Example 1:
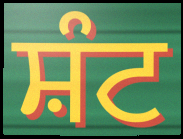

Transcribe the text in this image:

ਸ਼ੰਟ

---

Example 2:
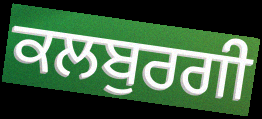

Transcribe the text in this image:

ਕਲਬੁਰਗੀ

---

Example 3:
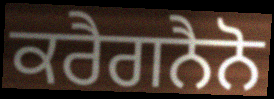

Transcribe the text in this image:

ਕਰੈਗਨੈਨੋ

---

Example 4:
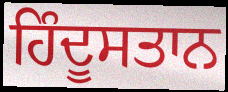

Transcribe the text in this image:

ਹਿੰਦੂਸਤਾਨ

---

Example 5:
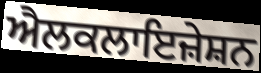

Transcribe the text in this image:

ਐਲਕਲਾਇਜ਼ੇਸ਼ਨ